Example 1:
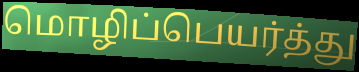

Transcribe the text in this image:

மொழிப்பெயர்த்து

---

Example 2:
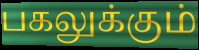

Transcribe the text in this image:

பகலுக்கும்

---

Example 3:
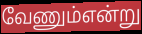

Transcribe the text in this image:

வேணும்என்று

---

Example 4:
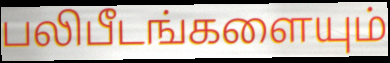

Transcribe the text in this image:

பலிபீடங்களையும்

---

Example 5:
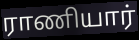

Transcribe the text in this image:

ராணியார்